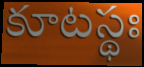
కూటస్థః